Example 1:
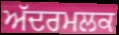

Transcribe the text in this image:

ਅੱਦਰਮਲਕ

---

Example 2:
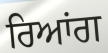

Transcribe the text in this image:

ਰਿਆਂਗ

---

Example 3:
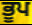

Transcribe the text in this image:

ਭੂਪ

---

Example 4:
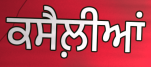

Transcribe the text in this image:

ਕਸੈਲ਼ੀਆਂ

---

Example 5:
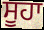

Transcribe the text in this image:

ਸੂਹਾ